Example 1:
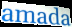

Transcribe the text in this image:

amada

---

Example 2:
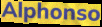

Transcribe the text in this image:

Alphonso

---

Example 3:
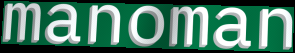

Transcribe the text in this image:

manoman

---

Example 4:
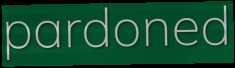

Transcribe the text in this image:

pardoned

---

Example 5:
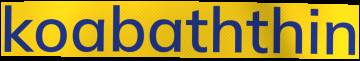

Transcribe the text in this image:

koabaththin